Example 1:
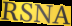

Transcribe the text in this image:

RSNA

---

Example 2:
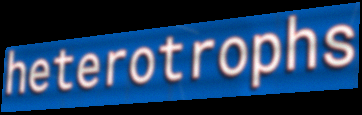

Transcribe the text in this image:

heterotrophs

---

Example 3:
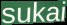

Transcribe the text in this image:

sukai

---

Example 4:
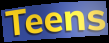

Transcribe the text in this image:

Teens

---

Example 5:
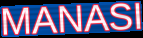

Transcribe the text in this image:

MANASI